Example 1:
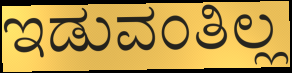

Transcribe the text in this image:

ಇಡುವಂತಿಲ್ಲ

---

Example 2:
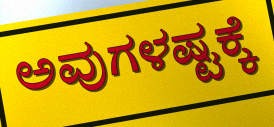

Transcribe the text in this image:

ಅವುಗಳಷ್ಟಕ್ಕೆ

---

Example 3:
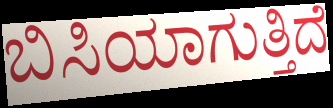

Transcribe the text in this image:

ಬಿಸಿಯಾಗುತ್ತಿದೆ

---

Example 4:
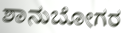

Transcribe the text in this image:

ಶಾನುಬೋಗರ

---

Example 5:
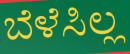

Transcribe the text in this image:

ಬೆಳೆಸಿಲ್ಲ